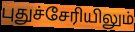
புதுச்சேரியிலும்